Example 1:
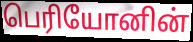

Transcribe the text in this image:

பெரியோனின்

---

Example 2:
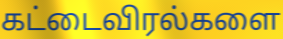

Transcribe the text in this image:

கட்டைவிரல்களை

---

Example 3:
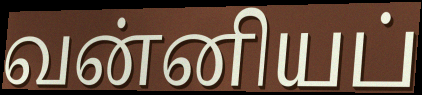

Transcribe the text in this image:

வன்னியப்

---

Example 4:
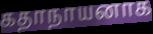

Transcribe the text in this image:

கதாநாயனாக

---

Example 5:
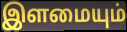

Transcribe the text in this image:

இளமையும்